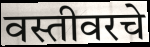
वस्तीवरचे